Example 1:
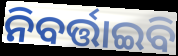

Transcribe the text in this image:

ନିବର୍ତ୍ତାଇବି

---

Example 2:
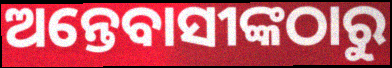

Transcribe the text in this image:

ଅନ୍ତେବାସୀଙ୍କଠାରୁ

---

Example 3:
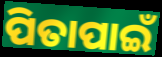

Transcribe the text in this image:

ପିତାପାଇଁ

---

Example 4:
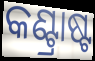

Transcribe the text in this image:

କଣ୍ଟ୍ରାଷ୍ଟ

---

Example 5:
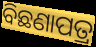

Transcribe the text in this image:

ବିଛଣାପତ୍ର